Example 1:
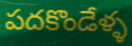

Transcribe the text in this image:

పదకొండేళ్ళ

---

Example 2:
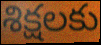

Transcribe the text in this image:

శిక్షలకు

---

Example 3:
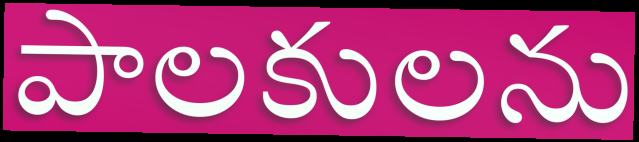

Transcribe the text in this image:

పాలకులను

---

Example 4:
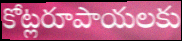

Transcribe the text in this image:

కోట్లరూపాయలకు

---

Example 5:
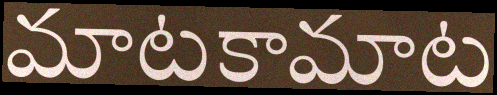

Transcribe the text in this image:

మాటకామాట